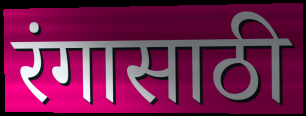
रंगासाठी